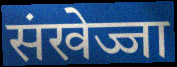
संखेज्जा